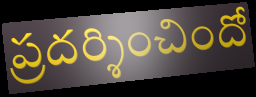
ప్రదర్శించిందో